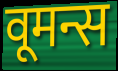
वूमन्स